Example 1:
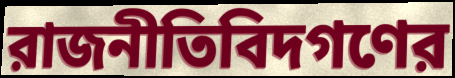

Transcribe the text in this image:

রাজনীতিবিদগণের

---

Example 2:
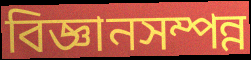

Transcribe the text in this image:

বিজ্ঞানসম্পন্ন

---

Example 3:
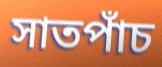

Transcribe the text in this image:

সাতপাঁচ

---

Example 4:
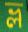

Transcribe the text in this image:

ভ্ল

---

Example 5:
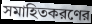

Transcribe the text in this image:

সমাহিতকরণের